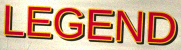
LEGEND